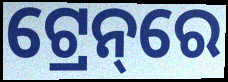
ଟ୍ରେନ୍‌ରେ